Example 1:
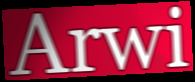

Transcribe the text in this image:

Arwi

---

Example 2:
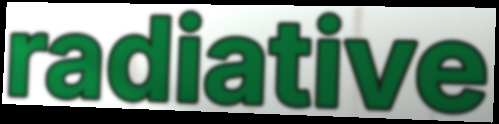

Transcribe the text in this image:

radiative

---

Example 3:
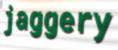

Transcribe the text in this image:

jaggery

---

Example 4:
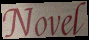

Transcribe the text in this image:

Novel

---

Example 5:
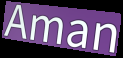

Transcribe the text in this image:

Aman